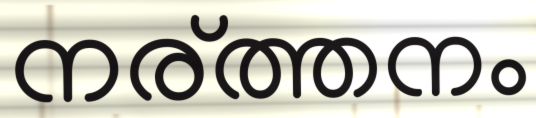
നര്ത്തനം